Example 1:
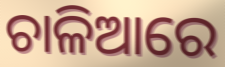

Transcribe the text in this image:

ଚାଳିଆରେ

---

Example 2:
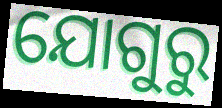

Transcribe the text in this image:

ଯୋଗୁରୁ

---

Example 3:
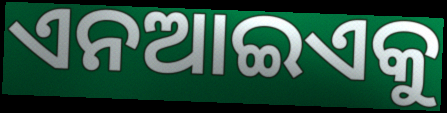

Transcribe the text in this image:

ଏନଆଇଏକୁ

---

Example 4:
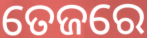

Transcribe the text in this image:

ତେଜରେ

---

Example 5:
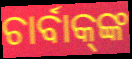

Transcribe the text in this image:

ଚାର୍ବାକ୍‌ଙ୍କ